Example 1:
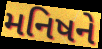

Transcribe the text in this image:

મનિષને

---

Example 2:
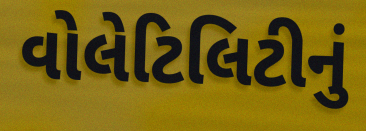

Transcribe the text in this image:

વોલેટિલિટીનું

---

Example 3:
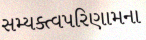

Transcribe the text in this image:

સમ્યક્ત્વપરિણામના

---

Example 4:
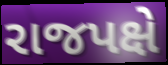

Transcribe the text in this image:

રાજપક્ષે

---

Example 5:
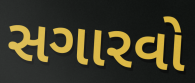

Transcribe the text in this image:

સગારવો